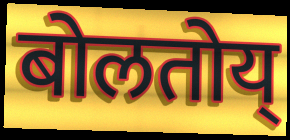
बोलतोय्